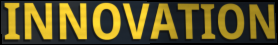
INNOVATION